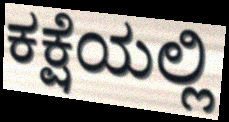
ಕಕ್ಷೆಯಲ್ಲಿ